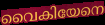
വൈകിയേനെ